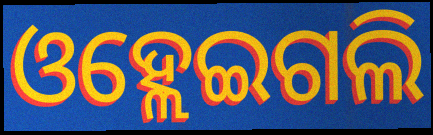
ଓହ୍ଲେଇଗଲି